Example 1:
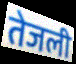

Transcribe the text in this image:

तेजली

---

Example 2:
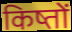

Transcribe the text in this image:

किष्तों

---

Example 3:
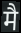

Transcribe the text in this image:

मै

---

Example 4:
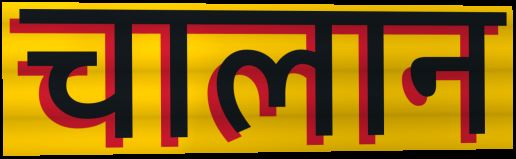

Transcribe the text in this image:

चालान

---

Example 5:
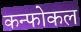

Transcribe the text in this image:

कन्फोकल